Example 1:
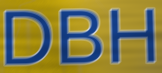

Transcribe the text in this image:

DBH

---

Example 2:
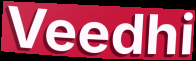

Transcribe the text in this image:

Veedhi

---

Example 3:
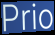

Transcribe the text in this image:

Prio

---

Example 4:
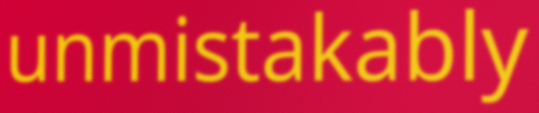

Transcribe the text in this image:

unmistakably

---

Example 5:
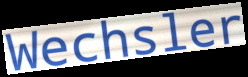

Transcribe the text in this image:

Wechsler